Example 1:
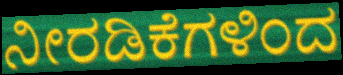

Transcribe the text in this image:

ನೀರಡಿಕೆಗಳಿಂದ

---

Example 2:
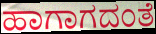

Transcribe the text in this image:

ಹಾಗಾಗದಂತೆ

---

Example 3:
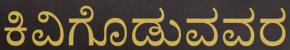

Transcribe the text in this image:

ಕಿವಿಗೊಡುವವರ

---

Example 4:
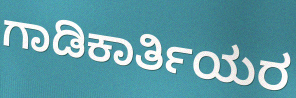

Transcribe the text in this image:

ಗಾಡಿಕಾರ್ತಿಯರ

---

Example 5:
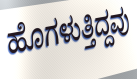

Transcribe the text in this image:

ಹೊಗಳುತ್ತಿದ್ದವು